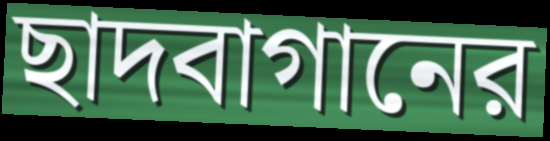
ছাদবাগানের